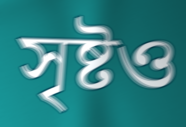
সৃষ্টও